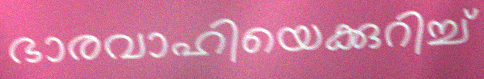
ഭാരവാഹിയെക്കുറിച്ച്